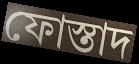
ফোস্তাদ